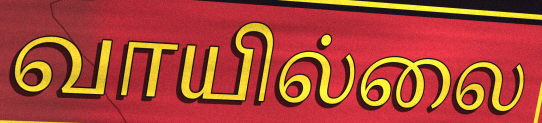
வாயில்லை